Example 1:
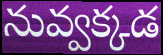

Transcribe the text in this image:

నువ్వక్కడ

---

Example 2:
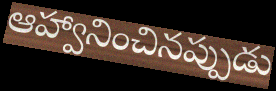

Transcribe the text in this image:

ఆహ్వానించినప్పుడు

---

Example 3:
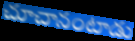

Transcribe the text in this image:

చూచానంటాడు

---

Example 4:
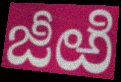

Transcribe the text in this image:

జీఱి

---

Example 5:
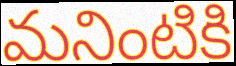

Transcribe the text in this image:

మనింటికి